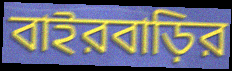
বাইরবাড়ির